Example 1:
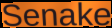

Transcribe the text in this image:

Senake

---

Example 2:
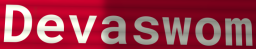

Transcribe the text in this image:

Devaswom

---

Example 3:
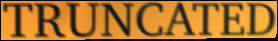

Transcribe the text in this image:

TRUNCATED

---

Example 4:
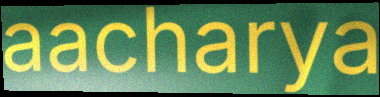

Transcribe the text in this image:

aacharya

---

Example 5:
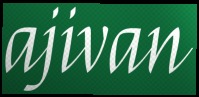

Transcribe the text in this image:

ajivan